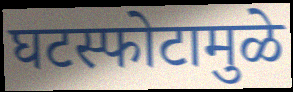
घटस्फोटामुळे